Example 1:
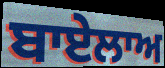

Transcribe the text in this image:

ਬਾਏਲਾਅ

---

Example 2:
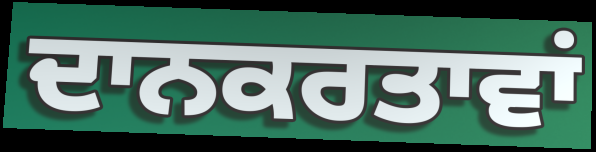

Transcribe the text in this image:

ਦਾਨਕਰਤਾਵਾਂ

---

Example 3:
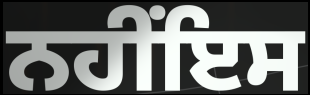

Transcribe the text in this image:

ਨਹੀਂਇਸ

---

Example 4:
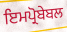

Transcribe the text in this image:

ਇਮਪ੍ਰੋਬੇਬਲ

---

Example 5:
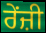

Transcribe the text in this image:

ਰੇਂਜ਼ੀ